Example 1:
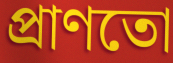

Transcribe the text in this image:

প্রাণতো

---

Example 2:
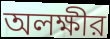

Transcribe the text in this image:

অলক্ষীর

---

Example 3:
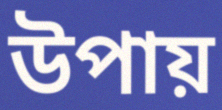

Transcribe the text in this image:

উপায়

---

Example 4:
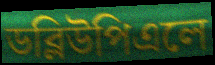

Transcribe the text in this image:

ডব্লিউপিএলে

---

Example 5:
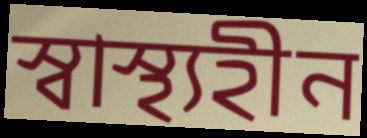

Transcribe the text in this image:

স্বাস্থ্যহীন